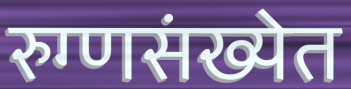
रुग्णसंख्येत